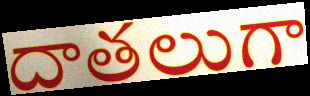
దాతలుగా